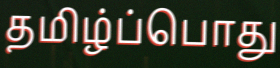
தமிழ்ப்பொது